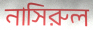
নাসিরুল